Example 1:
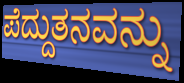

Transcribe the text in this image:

ಪೆದ್ದುತನವನ್ನು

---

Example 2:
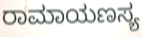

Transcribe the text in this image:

ರಾಮಾಯಣಸ್ಯ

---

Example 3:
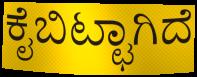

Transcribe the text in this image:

ಕೈಬಿಟ್ಟಾಗಿದೆ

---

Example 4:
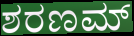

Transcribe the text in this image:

ಶರಣಮ್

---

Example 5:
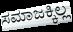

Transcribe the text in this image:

ಸಮಾಜಕ್ಕಿಲ್ಲ